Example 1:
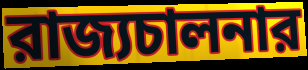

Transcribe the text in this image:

রাজ্যচালনার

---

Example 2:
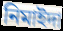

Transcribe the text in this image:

নিমাইদা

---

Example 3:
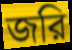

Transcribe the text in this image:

জরি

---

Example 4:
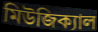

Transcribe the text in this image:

মিউজিক্যাল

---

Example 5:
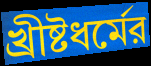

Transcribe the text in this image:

খ্রীষ্টধর্মের